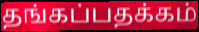
தங்கப்பதக்கம்